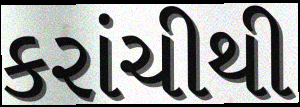
કરાંચીથી